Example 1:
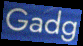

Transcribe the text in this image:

Gadg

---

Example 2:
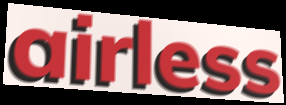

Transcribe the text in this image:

airless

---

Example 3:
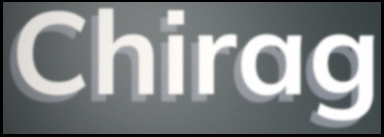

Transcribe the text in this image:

Chirag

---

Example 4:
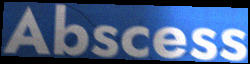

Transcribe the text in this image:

Abscess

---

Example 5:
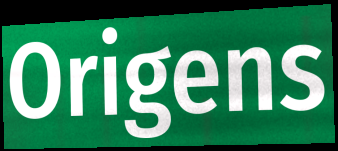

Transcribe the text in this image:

Origens